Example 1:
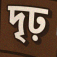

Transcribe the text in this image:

দৃঢ়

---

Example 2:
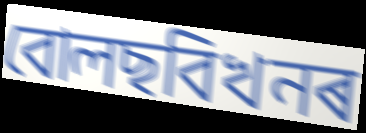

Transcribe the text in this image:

বোলছবিখনৰ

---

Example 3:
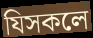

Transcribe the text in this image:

যিসকলে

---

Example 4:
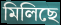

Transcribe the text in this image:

মিলিছে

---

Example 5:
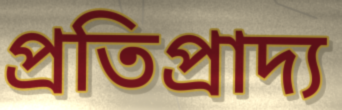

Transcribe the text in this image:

প্ৰতিপ্ৰাদ্য